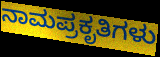
ನಾಮಪ್ರಕೃತಿಗಳು